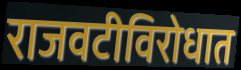
राजवटीविरोधात